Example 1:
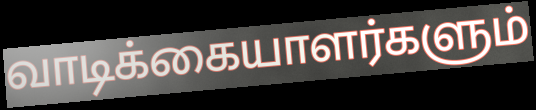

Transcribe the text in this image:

வாடிக்கையாளர்களும்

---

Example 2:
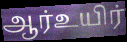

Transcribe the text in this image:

ஆர்உயிர்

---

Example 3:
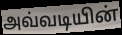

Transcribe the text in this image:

அவ்வடியின்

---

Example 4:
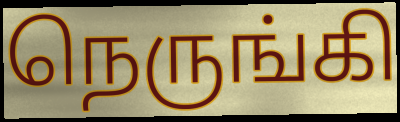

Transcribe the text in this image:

நெருங்கி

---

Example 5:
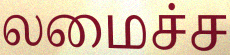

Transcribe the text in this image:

லமைச்ச